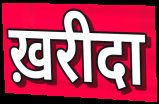
ख़रीदा